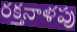
రక్తనాళపు